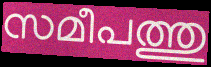
സമീപത്തു